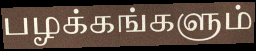
பழக்கங்களும்